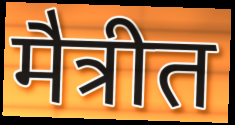
मैत्रीत